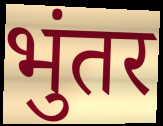
भुंतर